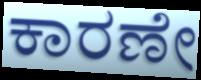
ಕಾರಣೇ